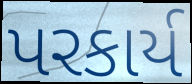
પરકાર્ય